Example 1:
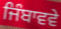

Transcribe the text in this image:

ਜਿੰਬਾਵਵੇ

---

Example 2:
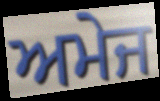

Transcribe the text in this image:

ਅਮੇਜ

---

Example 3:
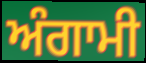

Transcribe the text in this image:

ਅੰਗਾਮੀ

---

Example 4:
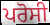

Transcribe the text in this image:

ਪਰੋਸੀ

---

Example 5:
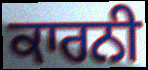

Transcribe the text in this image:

ਕਾਰਨੀ